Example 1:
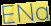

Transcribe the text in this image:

ENa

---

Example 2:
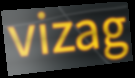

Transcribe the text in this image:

vizag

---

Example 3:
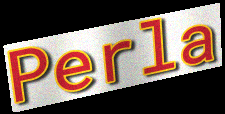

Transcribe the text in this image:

Perla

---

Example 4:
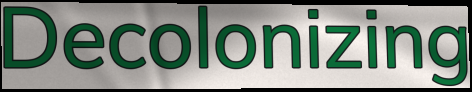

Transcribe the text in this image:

Decolonizing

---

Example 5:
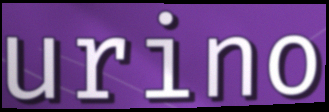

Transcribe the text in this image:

urino